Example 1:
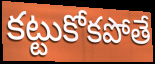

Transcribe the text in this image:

కట్టుకోకపోతే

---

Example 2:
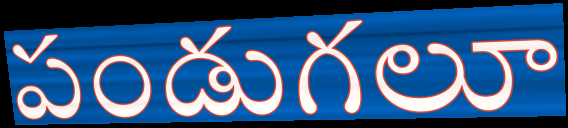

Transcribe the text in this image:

పండుగలూ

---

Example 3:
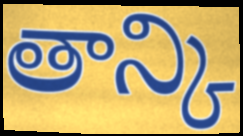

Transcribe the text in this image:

తాన్కి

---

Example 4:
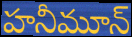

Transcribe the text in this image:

హనీమూన్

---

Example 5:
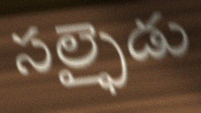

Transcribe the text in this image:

సల్ఫైడు